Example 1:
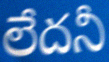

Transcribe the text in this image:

లేదనీ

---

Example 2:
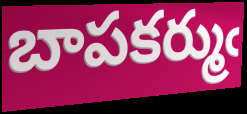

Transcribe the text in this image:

బాపకర్ముఁ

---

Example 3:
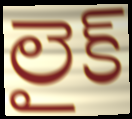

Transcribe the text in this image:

లైక్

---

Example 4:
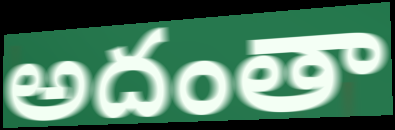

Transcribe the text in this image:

అదంతా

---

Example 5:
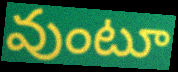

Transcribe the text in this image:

వుంటూ